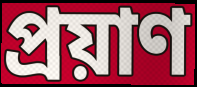
প্ৰয়াণ